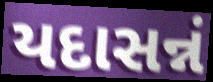
યદાસન્નં